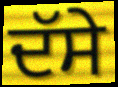
ਦੱਸੇ